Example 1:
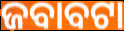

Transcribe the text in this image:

ଜବାବଟା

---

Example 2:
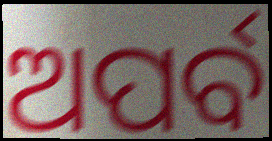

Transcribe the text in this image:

ଅପର୍ବ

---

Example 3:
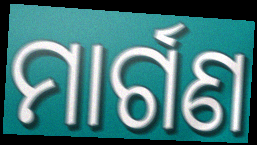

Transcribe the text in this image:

ମାର୍ଗଣ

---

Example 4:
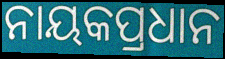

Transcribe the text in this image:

ନାୟକପ୍ରଧାନ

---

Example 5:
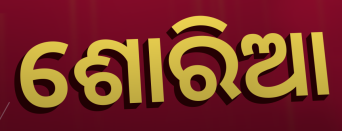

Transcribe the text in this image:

ଶୋରିଆ